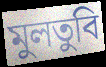
মুলতুবি